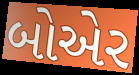
બોએર